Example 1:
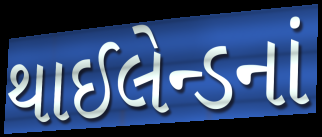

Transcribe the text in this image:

થાઈલેન્ડનાં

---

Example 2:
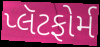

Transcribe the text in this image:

પ્લૅટફોર્મ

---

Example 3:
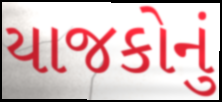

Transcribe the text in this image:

યાજકોનું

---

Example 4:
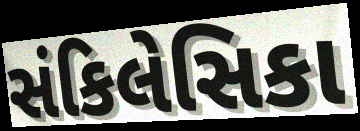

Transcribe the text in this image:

સંકિલેસિકા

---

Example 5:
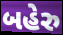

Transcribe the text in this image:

બહેરુ